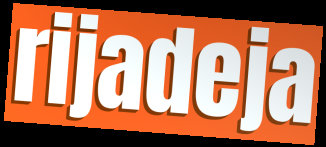
rijadeja